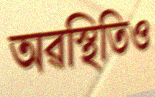
অৱস্থিতিও